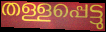
തള്ളപ്പെട്ടു